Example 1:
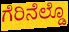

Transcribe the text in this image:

ಗೆರಿನೆಲ್ಡೊ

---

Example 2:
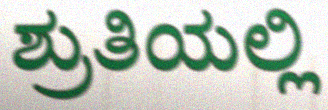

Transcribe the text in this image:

ಶ್ರುತಿಯಲ್ಲಿ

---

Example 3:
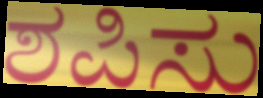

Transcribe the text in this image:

ಶಪಿಸು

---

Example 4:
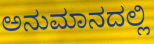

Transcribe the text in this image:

ಅನುಮಾನದಲ್ಲಿ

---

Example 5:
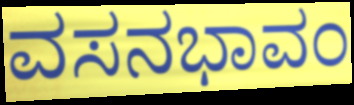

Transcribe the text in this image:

ವಸನಭಾವಂ